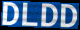
DLDD